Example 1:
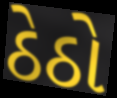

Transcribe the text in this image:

ઠેઠો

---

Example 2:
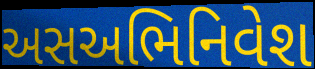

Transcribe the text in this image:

અસઅભિનિવેશ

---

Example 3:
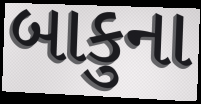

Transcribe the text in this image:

બાકુના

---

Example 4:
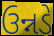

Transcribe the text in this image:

ઉન્નડે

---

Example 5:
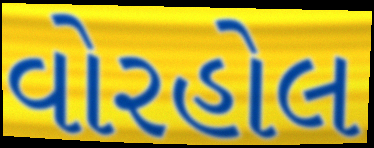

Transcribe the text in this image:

વોરહોલ